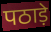
पठाड़े